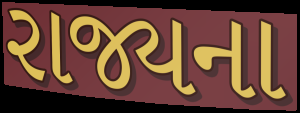
રાજ્યના